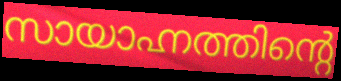
സായാഹ്നത്തിന്റെ